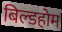
बिल्डहोम